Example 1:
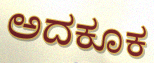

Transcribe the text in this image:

ಅದಕೂಕ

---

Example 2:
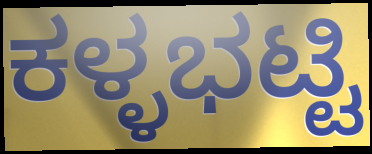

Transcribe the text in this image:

ಕಳ್ಳಭಟ್ಟಿ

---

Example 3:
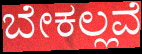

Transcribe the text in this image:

ಬೇಕಲ್ಲವೆ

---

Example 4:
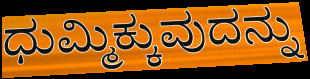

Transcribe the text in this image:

ಧುಮ್ಮಿಕ್ಕುವುದನ್ನು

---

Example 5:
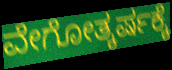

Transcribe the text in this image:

ವೇಗೋತ್ಕರ್ಷಕ್ಕೆ